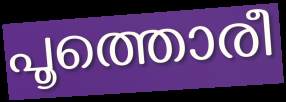
പൂത്തൊരീ